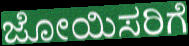
ಜೋಯಿಸರಿಗೆ